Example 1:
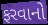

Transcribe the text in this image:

ફરવાનો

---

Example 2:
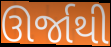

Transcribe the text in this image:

ઊર્જાથી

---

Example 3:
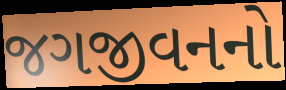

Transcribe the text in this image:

જગજીવનનો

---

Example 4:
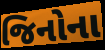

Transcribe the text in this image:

જિનોના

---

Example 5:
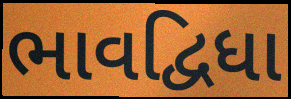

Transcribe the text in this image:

ભાવદ્વિધા